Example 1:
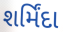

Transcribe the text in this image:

શર્મિંદા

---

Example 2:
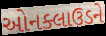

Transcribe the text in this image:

ઓનક્લાઉડને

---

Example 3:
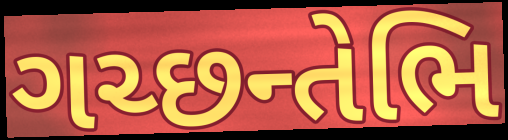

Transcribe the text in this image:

ગચ્છન્તેભિ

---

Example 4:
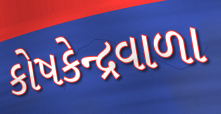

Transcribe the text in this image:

કોષકેન્દ્રવાળા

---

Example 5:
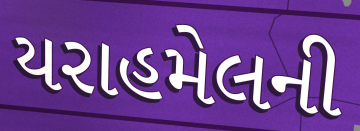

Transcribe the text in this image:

યરાહમેલની